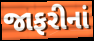
જાફરીનાં